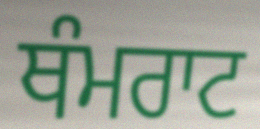
ਥੰਮਰਾਟ